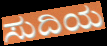
ಸುದಿಯ